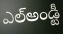
ఎల్అండ్టీ